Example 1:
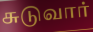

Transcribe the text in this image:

சுடுவார்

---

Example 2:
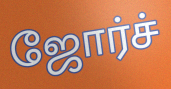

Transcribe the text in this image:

ஜோர்ச்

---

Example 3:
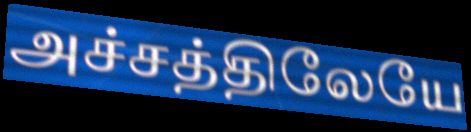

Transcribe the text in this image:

அச்சத்திலேயே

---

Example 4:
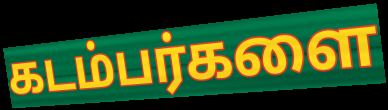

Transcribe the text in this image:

கடம்பர்களை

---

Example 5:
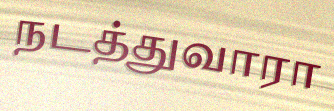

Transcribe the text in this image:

நடத்துவாரா